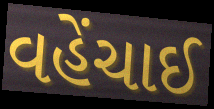
વહેંચાઈ